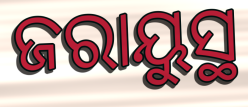
ଜରାୟୁସ୍ଥ